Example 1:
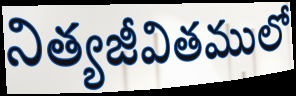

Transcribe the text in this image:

నిత్యజీవితములో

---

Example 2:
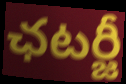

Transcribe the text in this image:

ఛటర్జీ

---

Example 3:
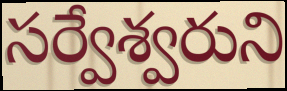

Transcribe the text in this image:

సర్వేశ్వరుని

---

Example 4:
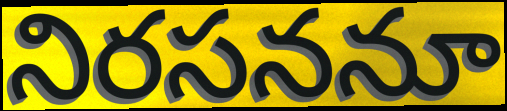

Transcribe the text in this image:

నిరసననూ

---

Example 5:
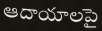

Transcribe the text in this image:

ఆదాయాలపై